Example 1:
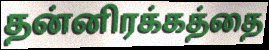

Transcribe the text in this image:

தன்னிரக்கத்தை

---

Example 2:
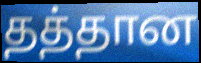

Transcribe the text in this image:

தத்தான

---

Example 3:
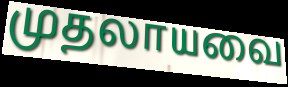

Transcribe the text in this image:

முதலாயவை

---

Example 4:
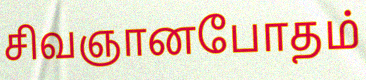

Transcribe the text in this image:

சிவஞானபோதம்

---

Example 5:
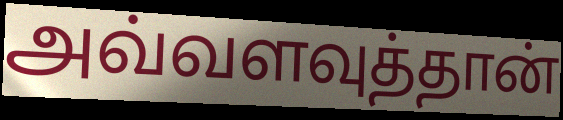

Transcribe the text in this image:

அவ்வளவுத்தான்